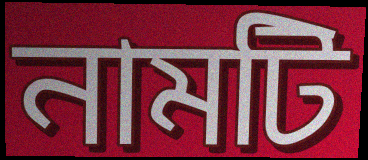
নামটি